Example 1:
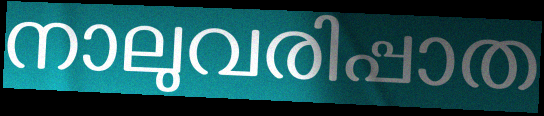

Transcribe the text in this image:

നാലുവരിപ്പാത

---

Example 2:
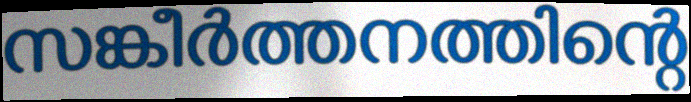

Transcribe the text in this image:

സങ്കീർത്തനത്തിന്റെ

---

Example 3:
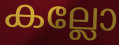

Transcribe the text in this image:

കല്ലോ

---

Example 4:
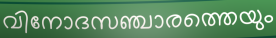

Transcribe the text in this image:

വിനോദസഞ്ചാരത്തെയും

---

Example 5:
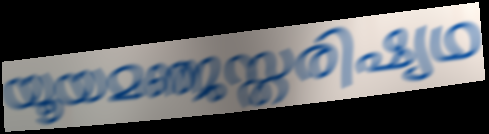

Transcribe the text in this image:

യൂയമഞ്ജസ്തരിഷ്യഥ